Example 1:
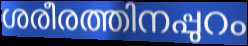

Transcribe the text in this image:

ശരീരത്തിനപ്പുറം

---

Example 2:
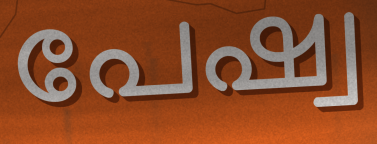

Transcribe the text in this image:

പേഷ്വ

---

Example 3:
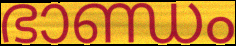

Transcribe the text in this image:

ഭാണ്ഡം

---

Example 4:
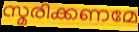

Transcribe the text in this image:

സ്മരിക്കണമേ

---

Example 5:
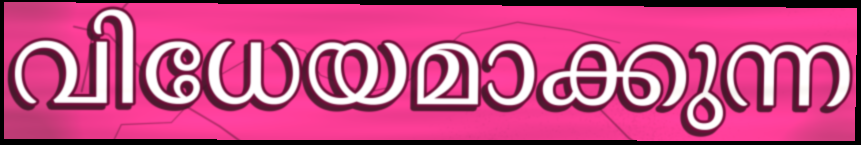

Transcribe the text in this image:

വിധേയമാക്കുന്ന